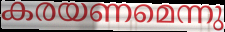
കരയണമെന്നു